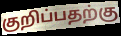
குறிப்பதற்கு